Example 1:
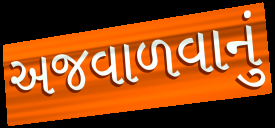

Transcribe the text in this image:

અજવાળવાનું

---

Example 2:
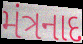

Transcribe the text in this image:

મંત્રનાદ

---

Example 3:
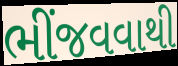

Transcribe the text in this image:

ભીંજવવાથી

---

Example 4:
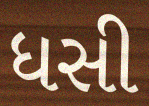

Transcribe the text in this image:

ધસી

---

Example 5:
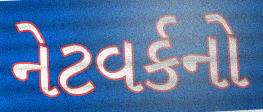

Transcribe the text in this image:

નેટવર્કનો